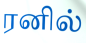
ரனில்